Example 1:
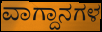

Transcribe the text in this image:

ವಾಗ್ದಾನಗಳ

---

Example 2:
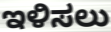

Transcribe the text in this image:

ಇಳಿಸಲು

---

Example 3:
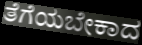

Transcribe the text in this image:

ತೆಗೆಯಬೇಕಾದ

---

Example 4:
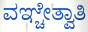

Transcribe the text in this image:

ವಞ್ಚೇತ್ವಾತಿ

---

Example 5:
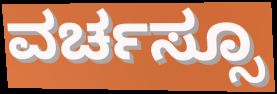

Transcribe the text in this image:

ವರ್ಚಸ್ಸೂ